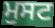
ਮੁਸਟ